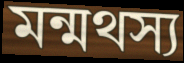
মন্মথস্য